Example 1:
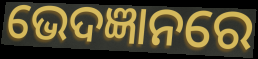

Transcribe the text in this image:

ଭେଦଜ୍ଞାନରେ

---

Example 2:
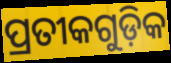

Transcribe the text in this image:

ପ୍ରତୀକଗୁଡ଼ିକ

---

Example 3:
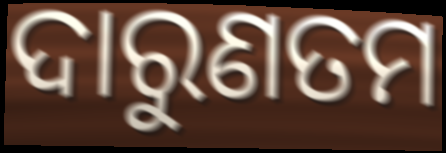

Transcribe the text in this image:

ଦାରୁଣତମ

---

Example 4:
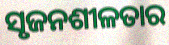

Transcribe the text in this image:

ସୃଜନଶୀଳତାର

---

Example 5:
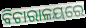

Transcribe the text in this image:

ବିଚାରାଳୟରେ